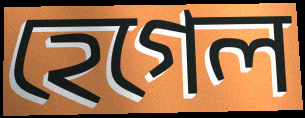
হেগেল